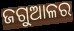
ଜଗୁଆଳର